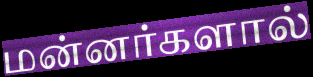
மன்னர்களால்